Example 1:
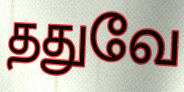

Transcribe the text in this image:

ததுவே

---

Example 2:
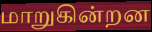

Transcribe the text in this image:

மாறுகின்றன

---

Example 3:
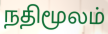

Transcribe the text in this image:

நதிமூலம்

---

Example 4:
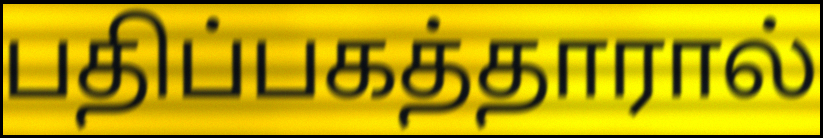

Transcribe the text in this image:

பதிப்பகத்தாரால்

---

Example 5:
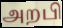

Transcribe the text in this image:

அறபி